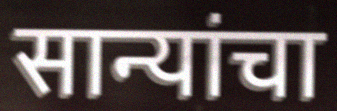
सान्यांचा